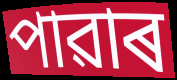
পাৱাৰ